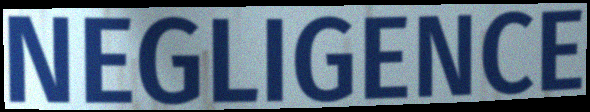
NEGLIGENCE